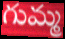
గుమ్మ